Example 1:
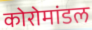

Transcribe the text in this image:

कोरोमांडल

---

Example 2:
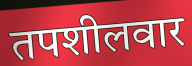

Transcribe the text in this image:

तपशीलवार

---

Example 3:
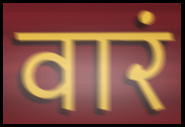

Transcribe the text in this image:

वारं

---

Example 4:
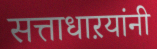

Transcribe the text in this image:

सत्ताधाऱयांनी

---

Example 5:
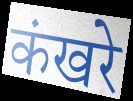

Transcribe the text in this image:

कंखरे